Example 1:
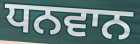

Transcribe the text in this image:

ਧਨਵਾਨ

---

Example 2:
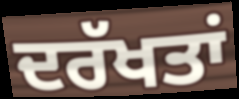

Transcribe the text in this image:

ਦਰੱਖਤਾਂ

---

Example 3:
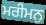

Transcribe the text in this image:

ਮਰੀਮਨੁ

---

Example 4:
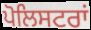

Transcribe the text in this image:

ਪੋਲਿਸਟਰਾਂ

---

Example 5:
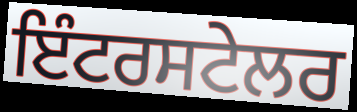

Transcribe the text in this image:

ਇੰਟਰਸਟੇਲਰ